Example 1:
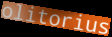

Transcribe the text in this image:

olitorius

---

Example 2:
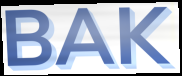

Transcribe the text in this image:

BAK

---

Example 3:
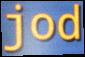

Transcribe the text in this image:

jod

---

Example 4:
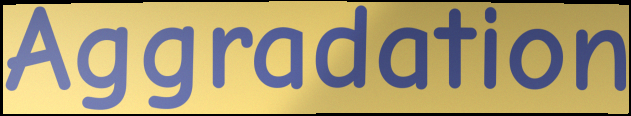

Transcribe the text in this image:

Aggradation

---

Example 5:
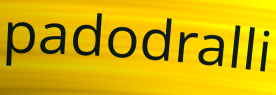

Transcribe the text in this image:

padodralli